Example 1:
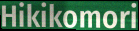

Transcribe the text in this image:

Hikikomori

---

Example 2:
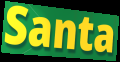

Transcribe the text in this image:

Santa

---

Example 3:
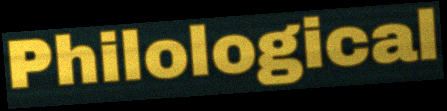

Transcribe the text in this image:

Philological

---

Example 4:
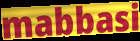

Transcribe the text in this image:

mabbasi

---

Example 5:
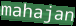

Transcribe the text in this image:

mahajan